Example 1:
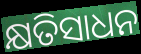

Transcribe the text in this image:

କ୍ଷତିସାଧନ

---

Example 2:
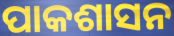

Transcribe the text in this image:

ପାକଶାସନ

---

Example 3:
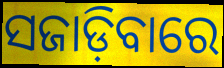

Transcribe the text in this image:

ସଜାଡ଼ିବାରେ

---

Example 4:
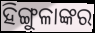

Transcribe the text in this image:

ହିଙ୍ଗୁଳାଙ୍କର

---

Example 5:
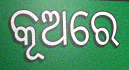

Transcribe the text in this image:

କୂଅରେ